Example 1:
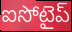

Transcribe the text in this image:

ఐసోటైప్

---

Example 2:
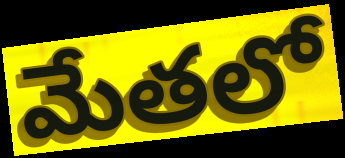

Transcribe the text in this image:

మేతలో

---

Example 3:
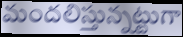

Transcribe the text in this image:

మందలిస్తున్నట్టుగా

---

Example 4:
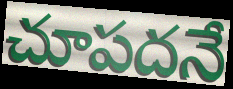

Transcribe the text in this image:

చూపదనే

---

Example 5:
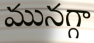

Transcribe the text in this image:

మునగ్గా